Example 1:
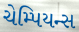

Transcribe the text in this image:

ચેમ્પિયન્સ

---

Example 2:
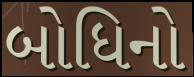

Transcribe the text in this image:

બોધિનો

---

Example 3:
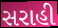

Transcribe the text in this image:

સરાહી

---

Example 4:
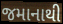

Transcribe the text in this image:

જમાનાથી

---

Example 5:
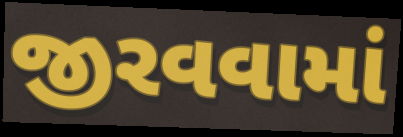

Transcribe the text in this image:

જીરવવામાં